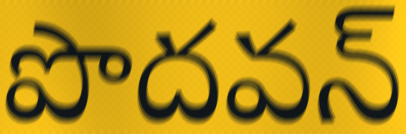
పొదవన్